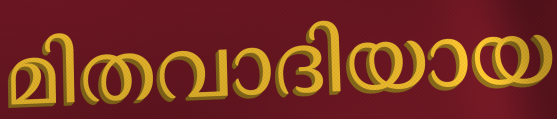
മിതവാദിയായ